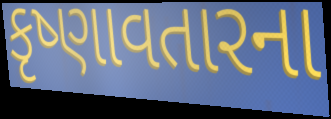
કૃષ્ણાવતારના